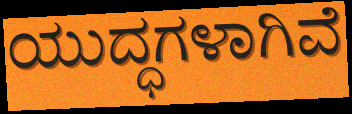
ಯುದ್ಧಗಳಾಗಿವೆ